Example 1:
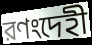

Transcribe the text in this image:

রণংদেহী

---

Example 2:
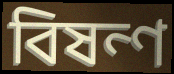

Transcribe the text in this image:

বিষন্ণ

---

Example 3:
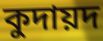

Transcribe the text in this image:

কুদায়দ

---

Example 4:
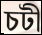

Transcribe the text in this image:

চটী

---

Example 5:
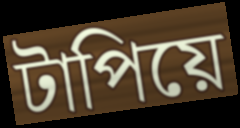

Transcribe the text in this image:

টাপিয়ে